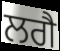
ਲਗੈ